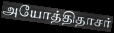
அயோத்திதாசர்